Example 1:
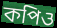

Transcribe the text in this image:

কপিও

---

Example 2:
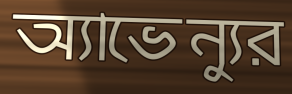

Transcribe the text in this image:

অ্যাভেন্যুর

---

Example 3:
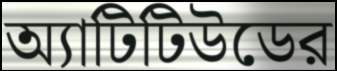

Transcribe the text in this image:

অ্যাটিটিউডের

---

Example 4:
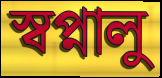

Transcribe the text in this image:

স্বপ্নালু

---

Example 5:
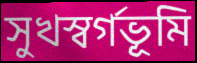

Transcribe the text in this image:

সুখস্বর্গভূমি